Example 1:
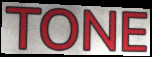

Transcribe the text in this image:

TONE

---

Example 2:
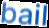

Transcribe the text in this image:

bail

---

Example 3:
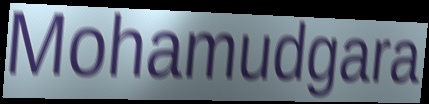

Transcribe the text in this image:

Mohamudgara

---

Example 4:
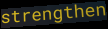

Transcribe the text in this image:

strengthen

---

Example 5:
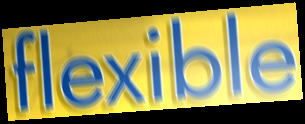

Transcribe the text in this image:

flexible